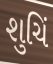
શુચિં